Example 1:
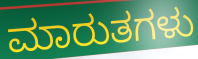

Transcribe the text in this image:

ಮಾರುತಗಳು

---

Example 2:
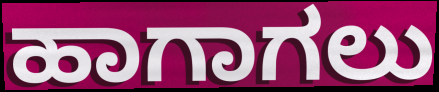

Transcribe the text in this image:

ಹಾಗಾಗಲು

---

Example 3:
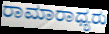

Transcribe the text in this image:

ರಾಮಾರಾಧ್ಯರು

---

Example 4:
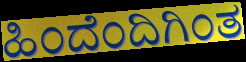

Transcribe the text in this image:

ಹಿಂದೆಂದಿಗಿಂತ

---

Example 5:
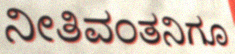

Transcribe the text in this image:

ನೀತಿವಂತನಿಗೂ